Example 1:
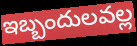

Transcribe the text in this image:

ఇబ్బందులవల్ల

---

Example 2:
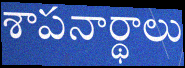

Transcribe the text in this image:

శాపనార్థాలు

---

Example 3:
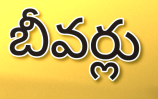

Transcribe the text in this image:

బీవర్లు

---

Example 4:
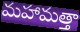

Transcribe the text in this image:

మహామత్తా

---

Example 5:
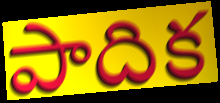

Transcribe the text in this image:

పాదిక